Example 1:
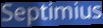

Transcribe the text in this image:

Septimius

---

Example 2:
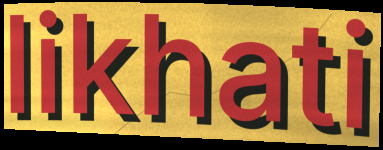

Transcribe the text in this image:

likhati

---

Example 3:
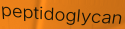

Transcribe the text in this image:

peptidoglycan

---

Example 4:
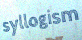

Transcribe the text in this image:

syllogism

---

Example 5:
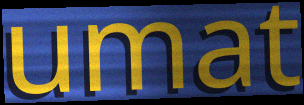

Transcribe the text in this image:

umat